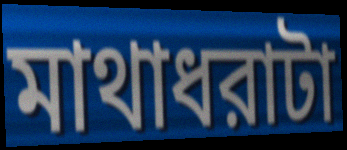
মাথাধরাটা